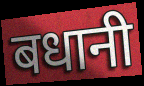
बधानी